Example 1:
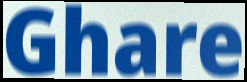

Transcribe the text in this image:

Ghare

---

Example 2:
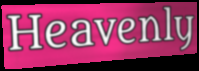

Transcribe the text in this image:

Heavenly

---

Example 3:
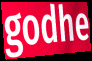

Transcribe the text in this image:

godhe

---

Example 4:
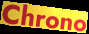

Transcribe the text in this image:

Chrono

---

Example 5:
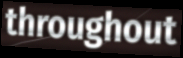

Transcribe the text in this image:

throughout